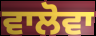
ਵਾਲੋਵਾ